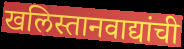
खलिस्तानवाद्यांची